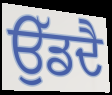
ਉੱਡਦੈ